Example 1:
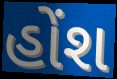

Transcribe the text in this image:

હોંશ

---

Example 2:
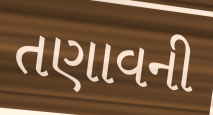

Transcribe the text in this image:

તણાવની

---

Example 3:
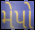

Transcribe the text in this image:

મેપો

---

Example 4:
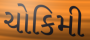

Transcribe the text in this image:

ચોકિમી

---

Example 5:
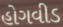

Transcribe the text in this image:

હોગવીડ